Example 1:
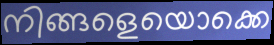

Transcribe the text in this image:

നിങ്ങളെയൊക്കെ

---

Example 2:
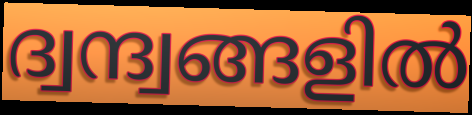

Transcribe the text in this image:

ദ്വന്ദ്വങ്ങളിൽ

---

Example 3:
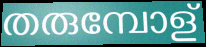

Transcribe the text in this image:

തരുമ്പോള്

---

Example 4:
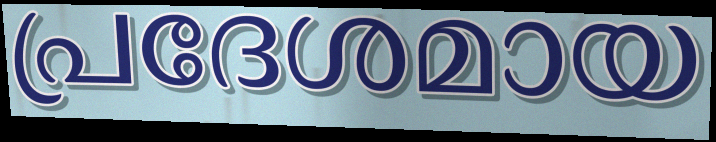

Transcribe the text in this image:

പ്രദേശമായ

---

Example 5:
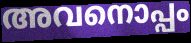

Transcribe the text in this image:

അവനൊപ്പം